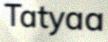
Tatyaa